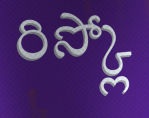
రిస్క్లో